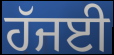
ਹੱਜਈ